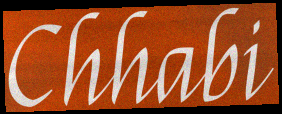
Chhabi